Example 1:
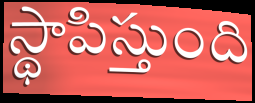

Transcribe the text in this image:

స్థాపిస్తుంది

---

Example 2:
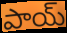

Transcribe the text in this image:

పాయ్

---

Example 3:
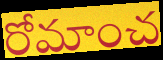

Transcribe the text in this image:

రోమాంచ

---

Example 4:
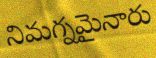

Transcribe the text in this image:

నిమగ్నమైనారు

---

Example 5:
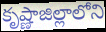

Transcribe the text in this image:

కృష్ణాజిల్లాలోని